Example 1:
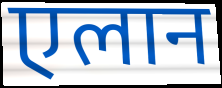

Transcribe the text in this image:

एलान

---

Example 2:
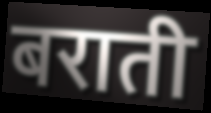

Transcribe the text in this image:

बराती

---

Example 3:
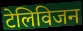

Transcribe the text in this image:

टेलिविजन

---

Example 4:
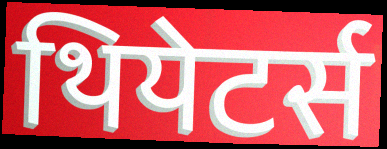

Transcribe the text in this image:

थियेटर्स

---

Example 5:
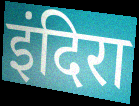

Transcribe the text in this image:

इंदिरा